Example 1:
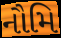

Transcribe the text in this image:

નૌમિ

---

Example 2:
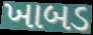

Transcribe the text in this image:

ખાબડ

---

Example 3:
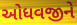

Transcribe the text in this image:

ઓધવજીને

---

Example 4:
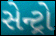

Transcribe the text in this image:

સેન્ટ્રો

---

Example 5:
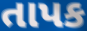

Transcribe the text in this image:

તાપક